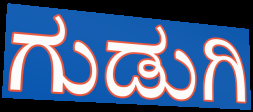
ಗುಡುಗಿ